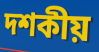
দশকীয়